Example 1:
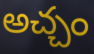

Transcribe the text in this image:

అచ్చం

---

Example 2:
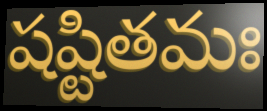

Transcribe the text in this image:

షష్టితమః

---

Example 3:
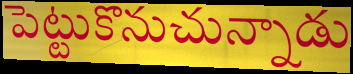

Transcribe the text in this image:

పెట్టుకొనుచున్నాడు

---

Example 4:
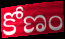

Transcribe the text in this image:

కోణం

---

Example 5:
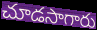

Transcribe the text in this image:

చూడసాగారు